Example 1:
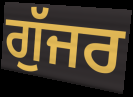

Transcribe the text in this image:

ਗੁੱਜਰ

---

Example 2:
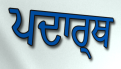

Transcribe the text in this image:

ਪਦਾਰ੍ਥ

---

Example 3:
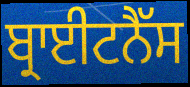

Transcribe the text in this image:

ਬ੍ਰਾਈਟਨੈੱਸ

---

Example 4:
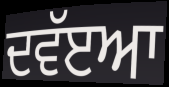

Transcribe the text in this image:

ਦਵੱੲਆ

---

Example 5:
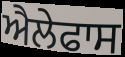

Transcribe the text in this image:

ਐਲੇਫਾਸ